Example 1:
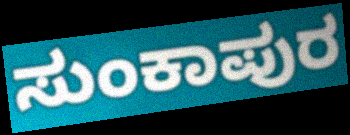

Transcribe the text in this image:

ಸುಂಕಾಪುರ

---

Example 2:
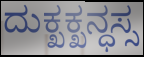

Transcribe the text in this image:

ದುಕ್ಖಕ್ಖನ್ಧಸ್ಸ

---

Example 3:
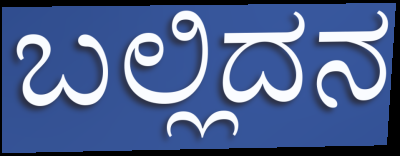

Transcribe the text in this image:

ಬಲ್ಲಿದನ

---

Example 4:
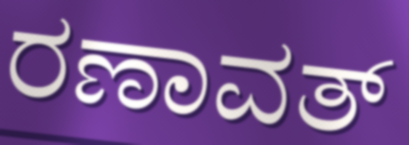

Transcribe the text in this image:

ರಣಾವತ್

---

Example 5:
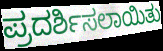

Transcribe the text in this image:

ಪ್ರದರ್ಶಿಸಲಾಯಿತು